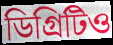
ডিগ্রিটিও